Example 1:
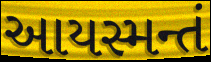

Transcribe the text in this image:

આયસ્મન્તં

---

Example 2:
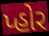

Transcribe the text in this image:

પ્હોર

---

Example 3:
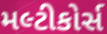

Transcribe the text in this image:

મલ્ટીકોર્સ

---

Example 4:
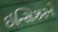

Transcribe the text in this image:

ઇન્સિઝરને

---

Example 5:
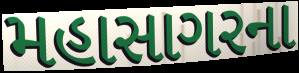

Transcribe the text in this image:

મહાસાગરના